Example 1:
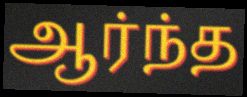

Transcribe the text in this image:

ஆர்ந்த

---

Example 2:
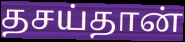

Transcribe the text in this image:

தசய்தான்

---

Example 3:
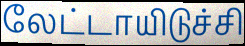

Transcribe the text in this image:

லேட்டாயிடுச்சி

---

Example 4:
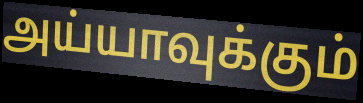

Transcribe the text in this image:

அய்யாவுக்கும்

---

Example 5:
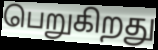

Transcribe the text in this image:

பெறுகிறது